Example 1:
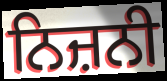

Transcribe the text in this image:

ਨਿਜ਼ਨੀ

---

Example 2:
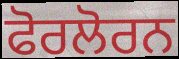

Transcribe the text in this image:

ਫੋਰਲੋਰਨ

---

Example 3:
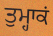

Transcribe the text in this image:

ਤੁਮ੍ਹਾਕਂ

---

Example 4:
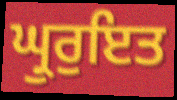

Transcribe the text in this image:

ਘ੍ਰੁਰੁਇਤ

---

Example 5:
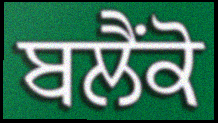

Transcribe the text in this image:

ਬਲੈਂਕੋ